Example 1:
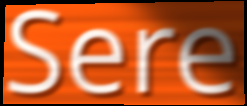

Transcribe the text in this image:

Sere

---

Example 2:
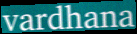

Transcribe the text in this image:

vardhana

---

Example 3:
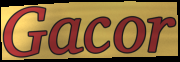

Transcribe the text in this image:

Gacor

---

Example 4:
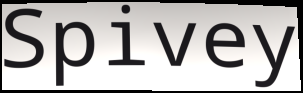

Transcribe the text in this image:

Spivey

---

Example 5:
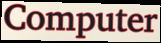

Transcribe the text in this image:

Computer